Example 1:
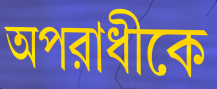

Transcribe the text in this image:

অপরাধীকে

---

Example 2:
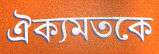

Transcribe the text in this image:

ঐক্যমতকে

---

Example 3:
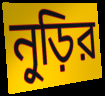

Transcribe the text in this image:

নুড়ির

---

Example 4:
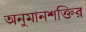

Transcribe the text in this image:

অনুমানশক্তির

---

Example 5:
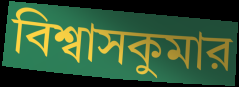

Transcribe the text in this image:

বিশ্বাসকুমার